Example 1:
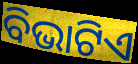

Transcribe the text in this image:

ବିଭାଟିଏ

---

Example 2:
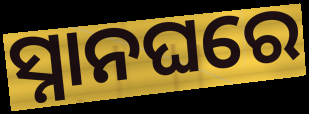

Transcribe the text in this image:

ସ୍ନାନଘରେ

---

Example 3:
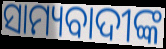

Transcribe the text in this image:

ସାମ୍ୟବାଦୀଙ୍କ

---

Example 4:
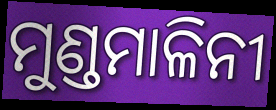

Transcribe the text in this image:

ମୁଣ୍ଡମାଳିନୀ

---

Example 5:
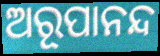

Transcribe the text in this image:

ଅରୂପାନନ୍ଦ